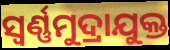
ସ୍ବର୍ଣ୍ଣମୁଦ୍ରାଯୁକ୍ତ